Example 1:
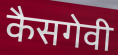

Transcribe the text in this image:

कैसगेवी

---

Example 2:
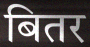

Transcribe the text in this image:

बितर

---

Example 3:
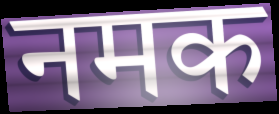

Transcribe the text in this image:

नमक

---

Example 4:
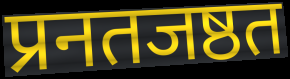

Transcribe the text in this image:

प्रनतजष्ठत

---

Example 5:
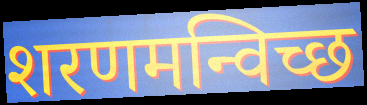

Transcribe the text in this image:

शरणमन्विच्छ